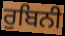
ਰੁਬਿਨੀ